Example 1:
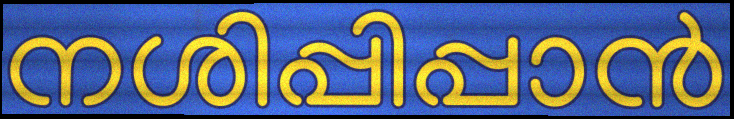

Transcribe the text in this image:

നശിപ്പിപ്പാൻ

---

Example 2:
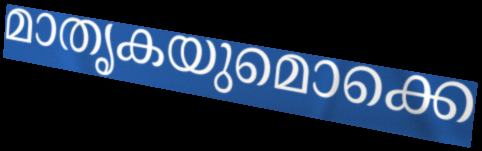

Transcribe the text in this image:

മാതൃകയുമൊക്കെ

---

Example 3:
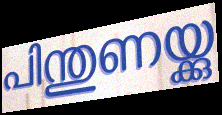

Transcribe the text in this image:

പിന്തുണയ്ക്കു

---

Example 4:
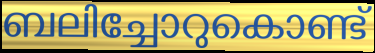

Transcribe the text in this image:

ബലിച്ചോറുകൊണ്ട്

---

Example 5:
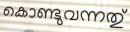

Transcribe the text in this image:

കൊണ്ടുവന്നതു്